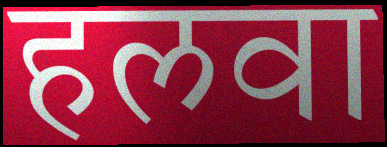
हलवा